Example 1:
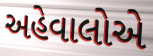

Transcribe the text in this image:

અહેવાલોએ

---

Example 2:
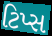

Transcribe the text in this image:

ટિપ્સ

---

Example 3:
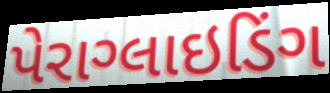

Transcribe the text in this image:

પેરાગ્લાઇડિંગ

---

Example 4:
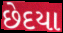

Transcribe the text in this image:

છેદયા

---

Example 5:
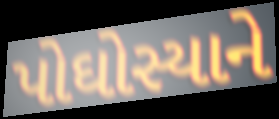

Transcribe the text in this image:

પોઘોસ્યાને